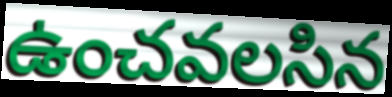
ఉంచవలసిన